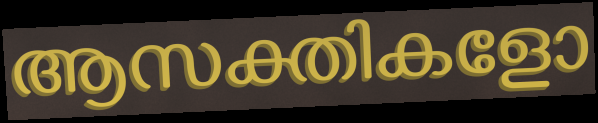
ആസക്തികളോ